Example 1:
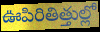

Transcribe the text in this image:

ఊపిరితిత్తుల్లో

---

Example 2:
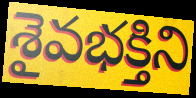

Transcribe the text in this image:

శైవభక్తిని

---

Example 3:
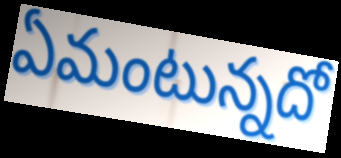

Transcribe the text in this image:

ఏమంటున్నదో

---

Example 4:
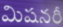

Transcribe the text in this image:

మిషనరీ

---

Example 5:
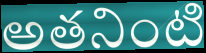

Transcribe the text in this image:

అతనింటి